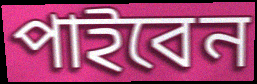
পাইবেন